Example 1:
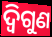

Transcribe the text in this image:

ଦ୍ୱିଗୁଣ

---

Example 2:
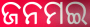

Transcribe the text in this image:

ଜନମଇ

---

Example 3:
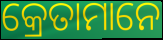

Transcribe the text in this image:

କ୍ରେତାମାନେ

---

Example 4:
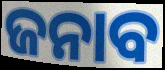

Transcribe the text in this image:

ଜନାବ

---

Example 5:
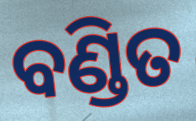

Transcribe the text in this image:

ବଣ୍ଡିତ